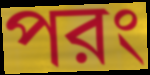
পরং